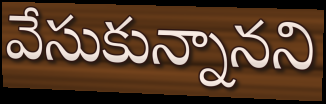
వేసుకున్నానని